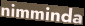
nimminda